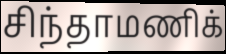
சிந்தாமணிக்